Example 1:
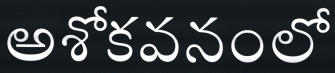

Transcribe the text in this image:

అశోకవనంలో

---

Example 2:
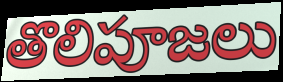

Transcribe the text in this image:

తొలిపూజలు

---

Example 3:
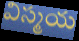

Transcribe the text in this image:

విస్మయ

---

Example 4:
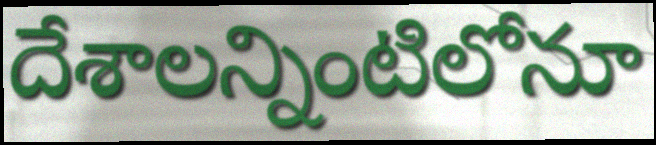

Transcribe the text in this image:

దేశాలన్నింటిలోనూ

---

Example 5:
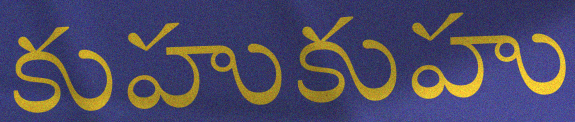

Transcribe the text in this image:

కుహుకుహు